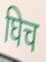
घिच